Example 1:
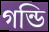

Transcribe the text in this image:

গন্ডি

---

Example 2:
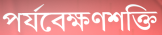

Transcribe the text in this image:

পর্যবেক্ষণশক্তি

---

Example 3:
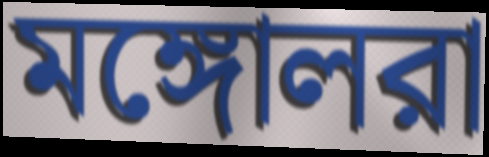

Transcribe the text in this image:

মঙ্গোলরা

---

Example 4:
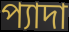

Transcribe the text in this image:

প্যাদা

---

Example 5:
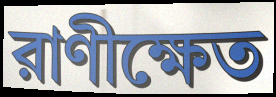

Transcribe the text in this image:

রাণীক্ষেত